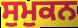
ਸੁਮੁਕਨ